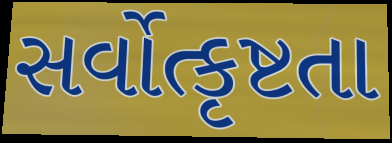
સર્વોત્કૃષ્ટતા